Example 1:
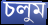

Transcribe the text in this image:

চলুম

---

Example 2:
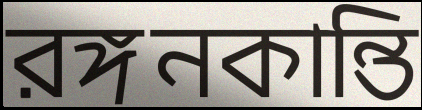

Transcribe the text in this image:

রঙ্গনকান্তি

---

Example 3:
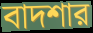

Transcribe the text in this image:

বাদশার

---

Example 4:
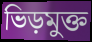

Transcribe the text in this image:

ভিড়মুক্ত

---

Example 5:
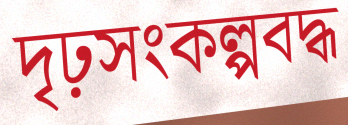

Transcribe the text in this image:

দৃঢ়সংকল্পবদ্ধ